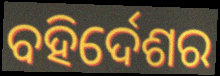
ବହିର୍ଦେଶର